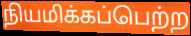
நியமிக்கப்பெற்ற